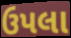
ઉપલા